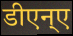
डीएन्ए